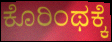
ಕೊರಿಂಥಕ್ಕೆ